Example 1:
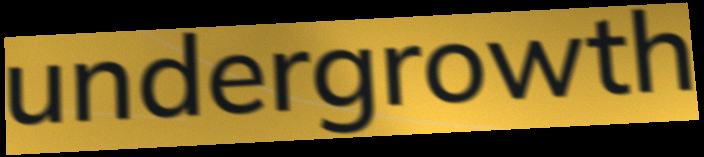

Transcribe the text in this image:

undergrowth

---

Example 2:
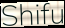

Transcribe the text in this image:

Shifu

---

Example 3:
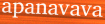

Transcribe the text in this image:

apanavava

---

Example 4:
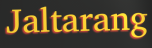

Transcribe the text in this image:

Jaltarang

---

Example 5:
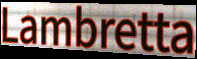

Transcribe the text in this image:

Lambretta